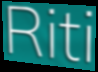
Riti